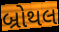
બ્રોથલ